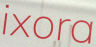
ixora